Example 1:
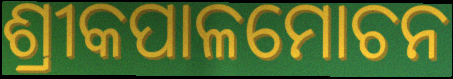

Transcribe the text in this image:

ଶ୍ରୀକପାଳମୋଚନ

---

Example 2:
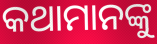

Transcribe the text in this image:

କଥାମାନଙ୍କୁ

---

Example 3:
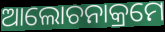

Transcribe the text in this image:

ଆଲୋଚନାକ୍ରମେ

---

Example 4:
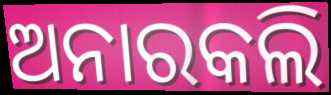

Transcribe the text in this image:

ଅନାରକଲି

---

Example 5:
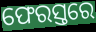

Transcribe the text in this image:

ଫେରସ୍ତରେ